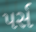
પર્સ